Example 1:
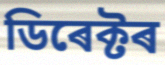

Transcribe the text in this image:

ডিৰেক্টৰ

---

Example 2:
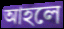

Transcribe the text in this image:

আহলে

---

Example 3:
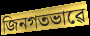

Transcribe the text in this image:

জিনগতভাৱে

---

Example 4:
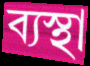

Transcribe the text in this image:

ব্যস্থা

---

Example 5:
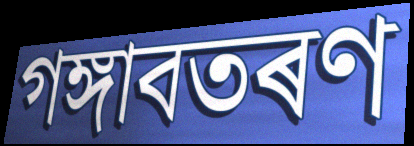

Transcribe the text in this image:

গঙ্গাবতৰণ